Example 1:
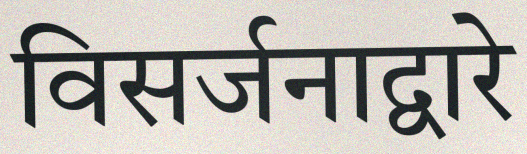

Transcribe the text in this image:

विसर्जनाद्वारे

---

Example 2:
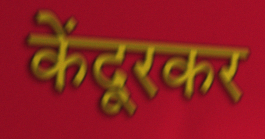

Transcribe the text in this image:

केंदूरकर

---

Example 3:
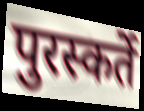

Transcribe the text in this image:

पुरस्कर्ते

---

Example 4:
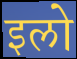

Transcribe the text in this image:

इलो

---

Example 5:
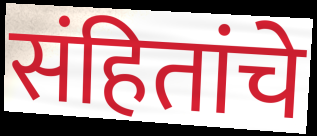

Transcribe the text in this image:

संहितांचे